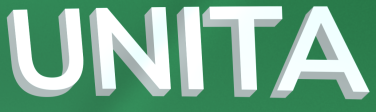
UNITA